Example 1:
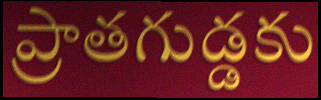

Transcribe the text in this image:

ప్రాతగుడ్డకు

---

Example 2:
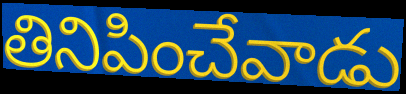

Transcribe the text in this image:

తినిపించేవాడు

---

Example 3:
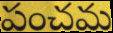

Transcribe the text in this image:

పంచమ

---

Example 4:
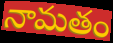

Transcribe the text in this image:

నామతం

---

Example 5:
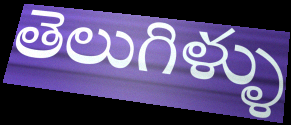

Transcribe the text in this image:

తెలుగిళ్ళు